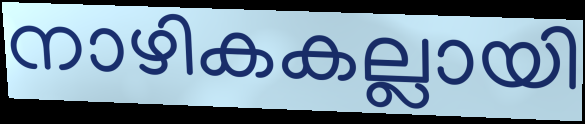
നാഴികകല്ലായി